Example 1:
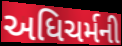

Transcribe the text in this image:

અધિચર્મની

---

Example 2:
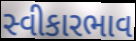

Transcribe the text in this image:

સ્વીકારભાવ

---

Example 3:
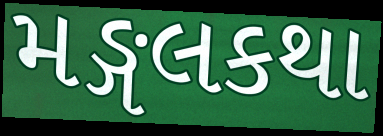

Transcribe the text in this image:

મઙ્ગલકથા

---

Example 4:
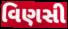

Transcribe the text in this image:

વિણસી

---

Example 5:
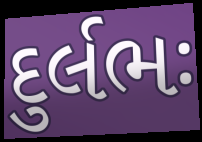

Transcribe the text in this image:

દુર્લભઃ